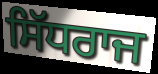
ਸਿੱਧਰਾਜ